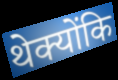
थेक्योंकि